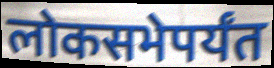
लोकसभेपर्यंत